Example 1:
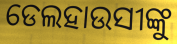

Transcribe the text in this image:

ଡେଲହାଉସୀଙ୍କୁ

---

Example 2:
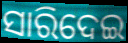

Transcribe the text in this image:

ସାରିଦେଇ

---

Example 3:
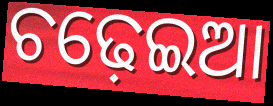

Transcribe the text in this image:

ଚଢ଼େଇଆ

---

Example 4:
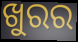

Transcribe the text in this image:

ଖୁରର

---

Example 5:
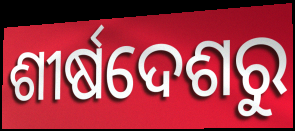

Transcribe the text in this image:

ଶୀର୍ଷଦେଶରୁ